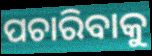
ପଚାରିବାକୁ